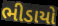
ભીડાયો